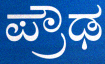
ಪ್ರೌಢ